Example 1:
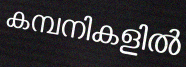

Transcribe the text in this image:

കമ്പനികളിൽ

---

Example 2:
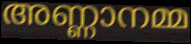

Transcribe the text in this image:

അണ്ണാനമ്മ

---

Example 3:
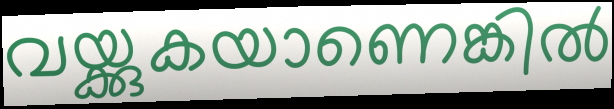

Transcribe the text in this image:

വയ്ക്കുകയാണെങ്കിൽ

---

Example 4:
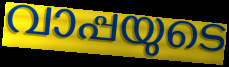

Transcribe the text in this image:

വാപ്പയുടെ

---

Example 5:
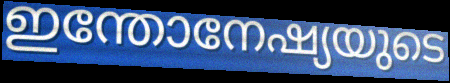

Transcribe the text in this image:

ഇന്തോനേഷ്യയുടെ